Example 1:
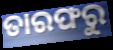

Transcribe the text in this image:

ତାରଫରୁ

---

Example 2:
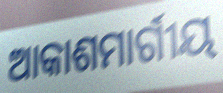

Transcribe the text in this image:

ଆକାଶମାର୍ଗୀୟ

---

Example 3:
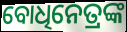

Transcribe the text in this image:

ବୋଧିନେତ୍ରଙ୍କ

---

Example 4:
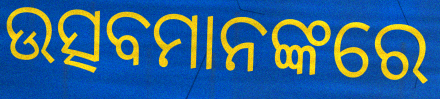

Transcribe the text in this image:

ଉତ୍ସବମାନଙ୍କରେ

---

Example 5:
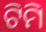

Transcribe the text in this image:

ଟିମି